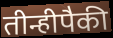
तीन्हीपैकी